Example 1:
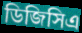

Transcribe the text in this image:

ডিজিসিএ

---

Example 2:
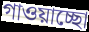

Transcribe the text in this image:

গাওয়াচ্ছো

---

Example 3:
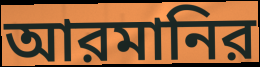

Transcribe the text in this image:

আরমানির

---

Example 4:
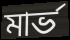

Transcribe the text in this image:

মার্ভ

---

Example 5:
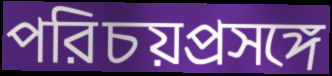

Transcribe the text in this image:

পরিচয়প্রসঙ্গে